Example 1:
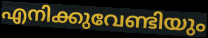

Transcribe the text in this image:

എനിക്കുവേണ്ടിയും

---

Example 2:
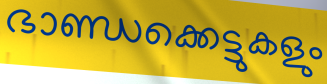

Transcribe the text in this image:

ഭാണ്ഡക്കെട്ടുകളും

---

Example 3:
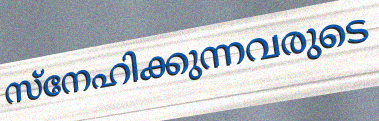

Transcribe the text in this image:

സ്നേഹിക്കുന്നവരുടെ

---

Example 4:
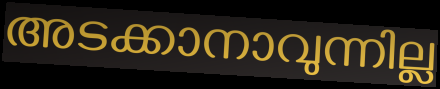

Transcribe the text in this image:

അടക്കാനാവുന്നില്ല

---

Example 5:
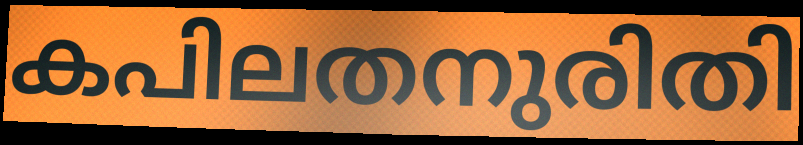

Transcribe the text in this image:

കപിലതനുരിതി